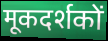
मूकदर्शकों